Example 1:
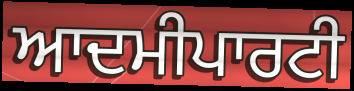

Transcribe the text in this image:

ਆਦਮੀਪਾਰਟੀ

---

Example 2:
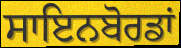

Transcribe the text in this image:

ਸਾਇਨਬੋਰਡਾਂ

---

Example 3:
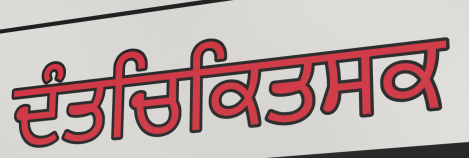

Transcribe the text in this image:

ਦੰਤਚਿਕਿਤਸਕ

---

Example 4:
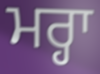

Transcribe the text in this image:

ਮਰ੍ਹਾ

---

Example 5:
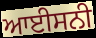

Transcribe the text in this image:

ਆਈਸਨੀ